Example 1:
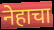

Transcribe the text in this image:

नेहाचा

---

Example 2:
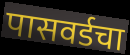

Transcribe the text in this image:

पासवर्डचा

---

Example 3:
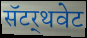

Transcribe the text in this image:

सॅटर्थवेट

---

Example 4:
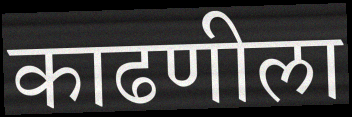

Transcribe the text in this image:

काढणीला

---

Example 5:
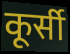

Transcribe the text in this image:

कूर्सी